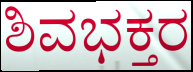
ಶಿವಭಕ್ತರ